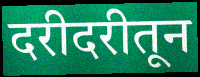
दरीदरीतून